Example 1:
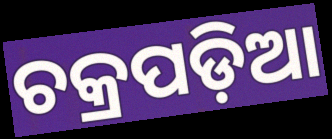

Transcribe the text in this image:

ଚକ୍ରପଡ଼ିଆ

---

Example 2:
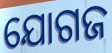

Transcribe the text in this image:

ଯୋଗଜ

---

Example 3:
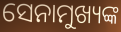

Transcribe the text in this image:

ସେନାମୁଖ୍ୟଙ୍କ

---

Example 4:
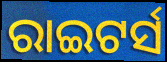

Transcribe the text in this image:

ରାଇଟର୍ସ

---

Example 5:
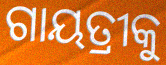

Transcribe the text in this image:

ଗାୟତ୍ରୀକୁ